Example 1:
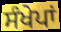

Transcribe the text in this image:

ਸੰਖੇਪਾਂ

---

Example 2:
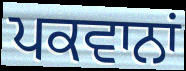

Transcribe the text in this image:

ਪਕਵਾਨਾਂ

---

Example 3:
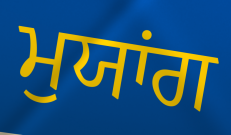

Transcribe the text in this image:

ਮੁਯਾਂਗ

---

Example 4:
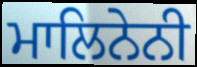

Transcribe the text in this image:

ਮਾਲਿਨੇਨੀ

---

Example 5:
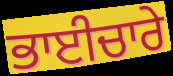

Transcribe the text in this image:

ਭਾਈਚਾਰੇ